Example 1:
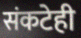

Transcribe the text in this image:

संकटेही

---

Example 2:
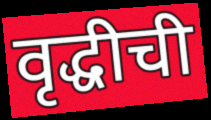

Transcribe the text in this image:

वृद्धीची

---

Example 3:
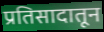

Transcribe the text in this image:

प्रतिसादातून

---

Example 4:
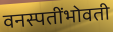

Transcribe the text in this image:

वनस्पतींभोवती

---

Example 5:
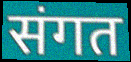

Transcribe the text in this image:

संगत